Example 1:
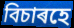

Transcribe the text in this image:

বিচাৰহে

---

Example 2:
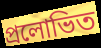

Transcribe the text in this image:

প্ৰলোভিত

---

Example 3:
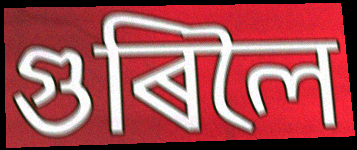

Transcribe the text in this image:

গুৰিলৈ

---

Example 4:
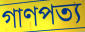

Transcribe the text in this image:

গাণপত্য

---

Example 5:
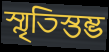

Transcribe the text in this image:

স্মৃতিস্তম্ভ